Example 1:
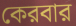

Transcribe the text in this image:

কেরবার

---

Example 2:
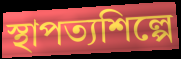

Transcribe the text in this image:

স্থাপত্যশিল্পে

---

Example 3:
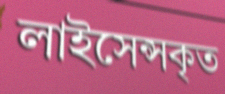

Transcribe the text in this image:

লাইসেন্সকৃত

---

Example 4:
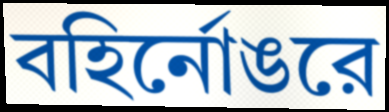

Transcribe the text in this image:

বহির্নোঙরে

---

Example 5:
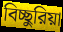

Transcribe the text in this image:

বিচ্ছুরিয়া